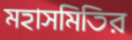
মহাসমিতির